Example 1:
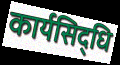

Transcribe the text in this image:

कार्यसिद्धि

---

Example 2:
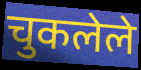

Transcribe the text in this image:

चुकलेले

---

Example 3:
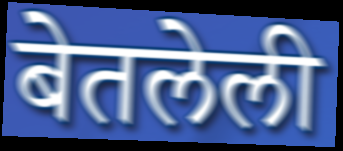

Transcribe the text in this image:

बेतलेली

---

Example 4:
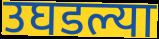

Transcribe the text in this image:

उघडल्या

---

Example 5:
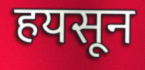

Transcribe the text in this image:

हयसून